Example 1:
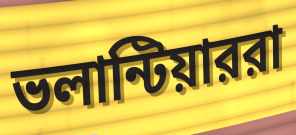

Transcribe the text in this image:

ভলান্টিয়াররা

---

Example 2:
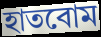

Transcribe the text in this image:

হাতবোম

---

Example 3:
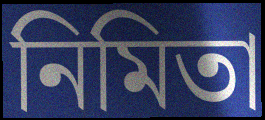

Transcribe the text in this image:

নিমিতা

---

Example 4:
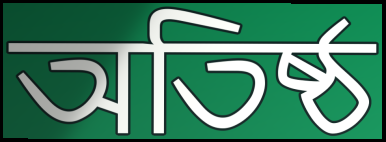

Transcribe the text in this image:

অতিষ্ঠ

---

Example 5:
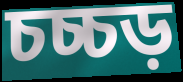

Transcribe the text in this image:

চচ্চড়